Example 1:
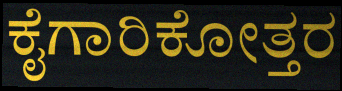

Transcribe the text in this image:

ಕೈಗಾರಿಕೋತ್ತರ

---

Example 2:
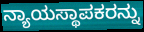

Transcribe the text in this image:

ನ್ಯಾಯಸ್ಥಾಪಕರನ್ನು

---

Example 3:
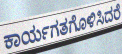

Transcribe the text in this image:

ಕಾರ್ಯಗತಗೊಳಿಸಿದರೆ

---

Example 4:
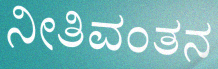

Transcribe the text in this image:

ನೀತಿವಂತನ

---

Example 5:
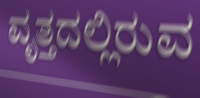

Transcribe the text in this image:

ವೃತ್ತದಲ್ಲಿರುವ